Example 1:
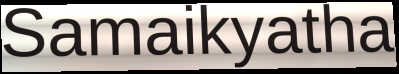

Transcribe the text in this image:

Samaikyatha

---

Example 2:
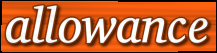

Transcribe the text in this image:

allowance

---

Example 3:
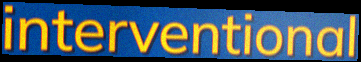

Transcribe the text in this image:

interventional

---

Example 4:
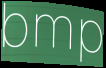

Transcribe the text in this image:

bmp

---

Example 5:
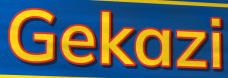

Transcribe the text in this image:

Gekazi